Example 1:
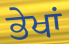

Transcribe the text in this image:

ਭੇਖਾਂ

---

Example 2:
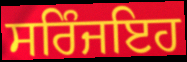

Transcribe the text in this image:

ਸਰਿੰਜਇਹ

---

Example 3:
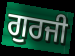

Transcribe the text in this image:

ਗੁਰਜੀ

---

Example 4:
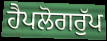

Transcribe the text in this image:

ਹੈਪਲੋਗਰੁੱਪ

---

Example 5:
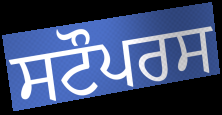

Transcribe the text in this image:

ਸਟੌਪਰਸ